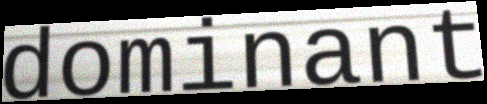
dominant